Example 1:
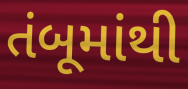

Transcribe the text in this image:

તંબૂમાંથી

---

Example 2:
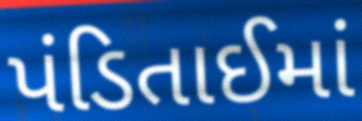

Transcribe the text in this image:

પંડિતાઈમાં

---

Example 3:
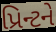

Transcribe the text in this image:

પ્રિન્ટને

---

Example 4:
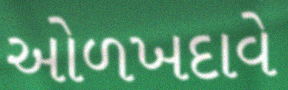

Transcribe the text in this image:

ઓળખદાવે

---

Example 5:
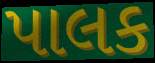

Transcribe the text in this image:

પાલક